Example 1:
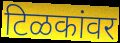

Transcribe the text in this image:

टिळकांवर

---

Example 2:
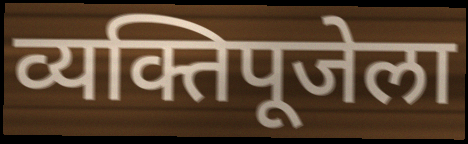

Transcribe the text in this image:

व्यक्तिपूजेला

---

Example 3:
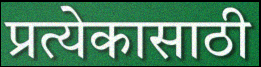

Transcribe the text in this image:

प्रत्येकासाठी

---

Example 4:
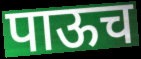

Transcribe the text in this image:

पाऊच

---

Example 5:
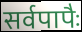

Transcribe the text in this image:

सर्वपापैः